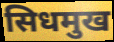
सिधमुख